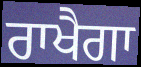
ਰਾਖੈਗਾ